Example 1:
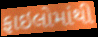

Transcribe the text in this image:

ફાઇલોમાંથી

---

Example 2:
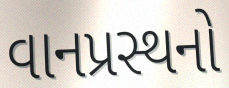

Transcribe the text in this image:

વાનપ્રસ્થનો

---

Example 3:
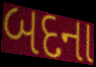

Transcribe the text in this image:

બદના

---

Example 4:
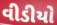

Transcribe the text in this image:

વીડીયો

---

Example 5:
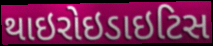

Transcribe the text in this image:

થાઇરોઇડાઇટિસ